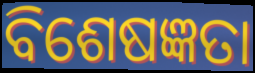
ବିଶେଷଜ୍ଞତା